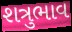
શત્રુભાવ